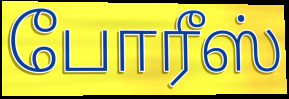
போரீஸ்